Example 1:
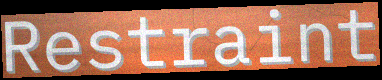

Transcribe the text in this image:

Restraint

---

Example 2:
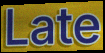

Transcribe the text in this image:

Late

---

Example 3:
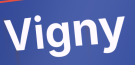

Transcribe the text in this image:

Vigny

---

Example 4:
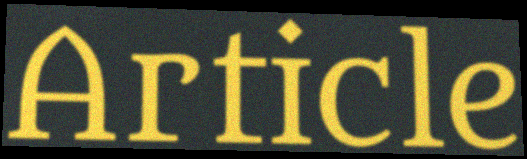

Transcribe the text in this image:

Article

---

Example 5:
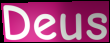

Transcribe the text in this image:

Deus